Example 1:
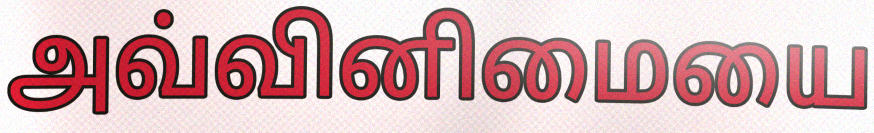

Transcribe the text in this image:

அவ்வினிமையை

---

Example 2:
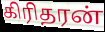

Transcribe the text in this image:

கிரிதரன்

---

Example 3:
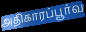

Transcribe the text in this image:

அதிகாரப்பூர்வ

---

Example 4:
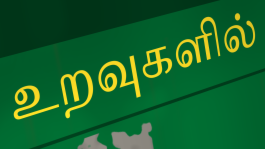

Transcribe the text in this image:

உறவுகளில்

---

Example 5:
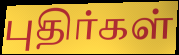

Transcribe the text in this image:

புதிர்கள்